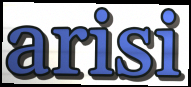
arisi